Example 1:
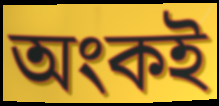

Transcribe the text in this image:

অংকই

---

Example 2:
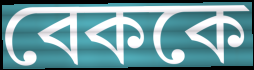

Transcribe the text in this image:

বেককে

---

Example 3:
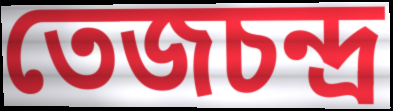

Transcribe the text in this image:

তেজচন্দ্র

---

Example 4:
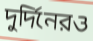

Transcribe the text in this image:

দুর্দিনেরও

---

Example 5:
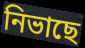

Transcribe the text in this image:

নিভাছে